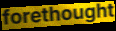
forethought